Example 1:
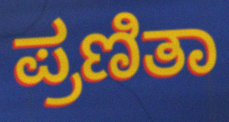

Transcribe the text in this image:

ಪ್ರಣಿತಾ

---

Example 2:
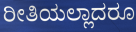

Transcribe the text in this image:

ರೀತಿಯಲ್ಲಾದರೂ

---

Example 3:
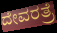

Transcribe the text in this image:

ದೇವರತ್ರೆ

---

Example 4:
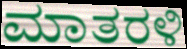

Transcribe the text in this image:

ಮಾತರಳಿ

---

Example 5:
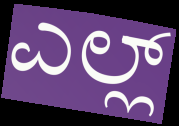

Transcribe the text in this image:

ಎಲ್ಲ್